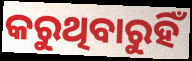
କରୁଥିବାରୁହିଁ